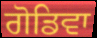
ਗੋਡਿਵਾ